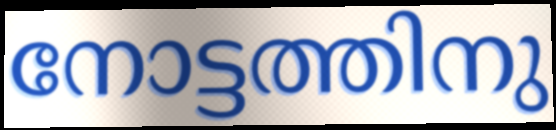
നോട്ടത്തിനു